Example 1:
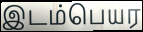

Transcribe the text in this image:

இடம்பெயர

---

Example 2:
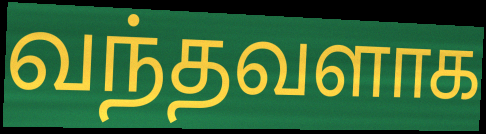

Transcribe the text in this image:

வந்தவளாக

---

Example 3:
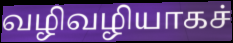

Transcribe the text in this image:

வழிவழியாகச்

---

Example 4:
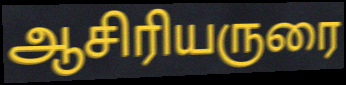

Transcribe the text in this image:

ஆசிரியருரை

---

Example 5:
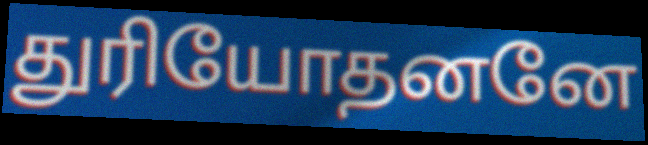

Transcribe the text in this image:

துரியோதனனே